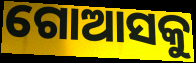
ଗୋଆସକୁ